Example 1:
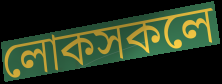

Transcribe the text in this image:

লোকসকলে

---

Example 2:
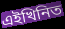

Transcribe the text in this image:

এইখিনিত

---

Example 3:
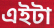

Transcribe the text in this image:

এইটা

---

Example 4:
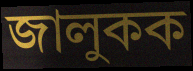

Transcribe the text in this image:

জালুকক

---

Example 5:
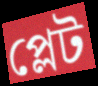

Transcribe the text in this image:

প্লেট